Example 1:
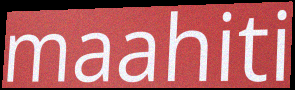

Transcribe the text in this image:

maahiti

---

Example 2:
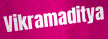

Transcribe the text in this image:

Vikramaditya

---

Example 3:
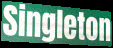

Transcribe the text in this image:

Singleton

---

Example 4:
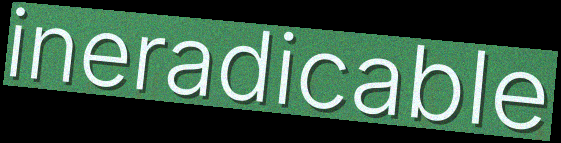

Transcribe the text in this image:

ineradicable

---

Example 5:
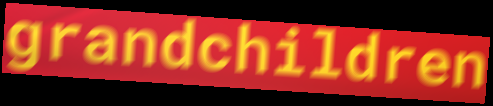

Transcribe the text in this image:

grandchildren